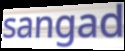
sangad